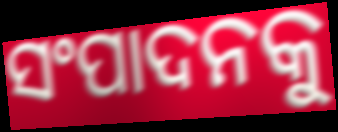
ସଂପାଦନକୁ